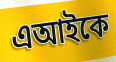
এআইকে